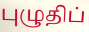
புழுதிப்